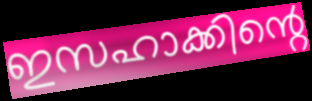
ഇസഹാക്കിന്റെ